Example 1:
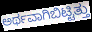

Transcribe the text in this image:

ಅರ್ಥವಾಗಿಬಿಟ್ಟಿತ್ತು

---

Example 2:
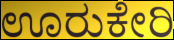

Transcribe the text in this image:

ಊರುಕೇರಿ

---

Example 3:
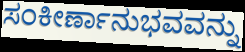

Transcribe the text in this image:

ಸಂಕೀರ್ಣಾನುಭವವನ್ನು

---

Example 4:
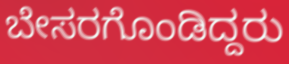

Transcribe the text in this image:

ಬೇಸರಗೊಂಡಿದ್ದರು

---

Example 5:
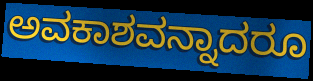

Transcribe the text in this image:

ಅವಕಾಶವನ್ನಾದರೂ